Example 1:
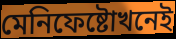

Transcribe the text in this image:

মেনিফেষ্টোখনেই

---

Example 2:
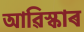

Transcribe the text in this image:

আৱিস্কাৰ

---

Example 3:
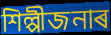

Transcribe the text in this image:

শিল্পীজনাৰ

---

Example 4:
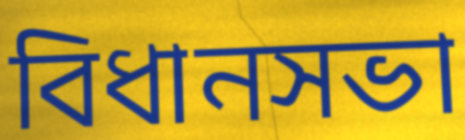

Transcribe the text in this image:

বিধানসভা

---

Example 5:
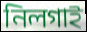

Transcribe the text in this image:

নিলগাই